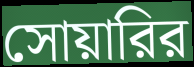
সোয়ারির